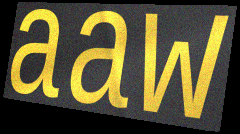
aaw